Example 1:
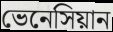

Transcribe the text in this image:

ভেনেসিয়ান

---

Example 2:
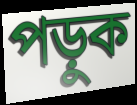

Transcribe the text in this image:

পড়ুক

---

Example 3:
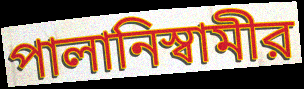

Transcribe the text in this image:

পালানিস্বামীর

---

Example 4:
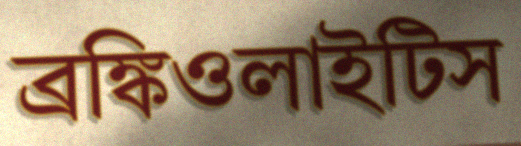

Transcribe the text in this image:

ব্রঙ্কিওলাইটিস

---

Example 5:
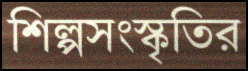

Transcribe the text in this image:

শিল্পসংস্কৃতির